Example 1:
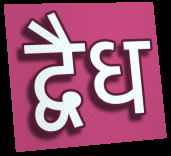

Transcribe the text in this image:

द्वैध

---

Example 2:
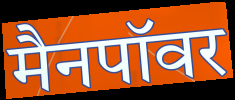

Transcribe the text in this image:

मैनपॉवर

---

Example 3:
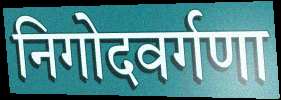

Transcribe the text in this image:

निगोदवर्गणा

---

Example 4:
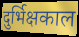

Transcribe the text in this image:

दुर्भिक्षकाल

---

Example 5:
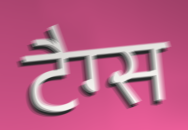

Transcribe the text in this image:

टैग्स